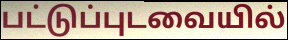
பட்டுப்புடவையில்